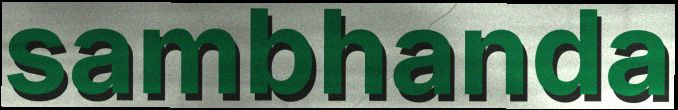
sambhanda